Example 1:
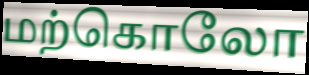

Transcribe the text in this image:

மற்கொலோ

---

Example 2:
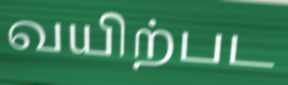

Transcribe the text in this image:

வயிற்பட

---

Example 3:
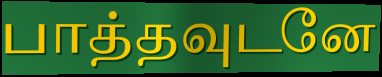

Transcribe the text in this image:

பாத்தவுடனே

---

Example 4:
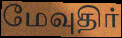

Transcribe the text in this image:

மேவுதிர்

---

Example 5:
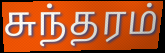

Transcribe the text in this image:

சுந்தரம்